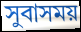
সুবাসময়